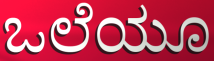
ಒಲೆಯೂ